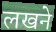
लखने